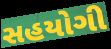
સહયોગી